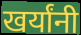
खर्यांनी